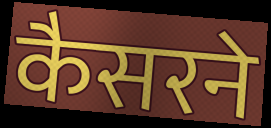
कैसरने